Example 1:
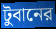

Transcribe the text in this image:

টুবানের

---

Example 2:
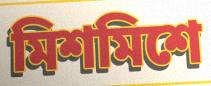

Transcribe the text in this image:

মিশমিশে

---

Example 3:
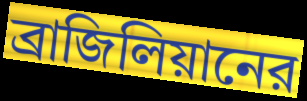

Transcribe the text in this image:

ব্রাজিলিয়ানের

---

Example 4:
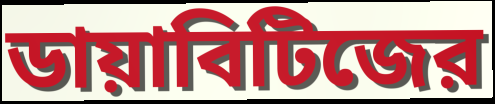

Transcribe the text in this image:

ডায়াবিটিজের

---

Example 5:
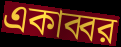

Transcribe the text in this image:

একাব্বর